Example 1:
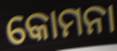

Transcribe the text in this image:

କୋମନା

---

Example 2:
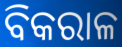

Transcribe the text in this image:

ବିକରାଳ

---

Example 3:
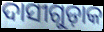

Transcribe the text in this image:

ଦାସୀଗୁଡ଼ାକ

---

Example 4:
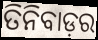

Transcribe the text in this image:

ତିନିବାଡ଼ର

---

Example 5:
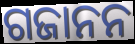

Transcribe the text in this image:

ଗଜାନନ